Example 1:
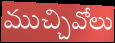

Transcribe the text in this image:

ముచ్చివోలు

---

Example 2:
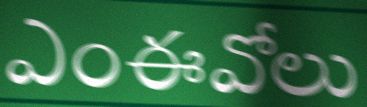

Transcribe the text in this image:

ఎంఈవోలు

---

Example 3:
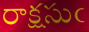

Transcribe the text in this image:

రాక్షసుఁ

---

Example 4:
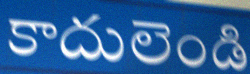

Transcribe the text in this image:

కాదులెండి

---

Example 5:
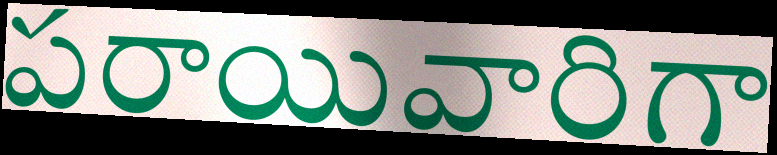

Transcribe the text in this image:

పరాయివారిగా